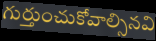
గుర్తుంచుకోవాల్సినవి